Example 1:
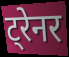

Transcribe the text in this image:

ट्रेनर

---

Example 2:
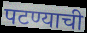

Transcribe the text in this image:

पटण्याची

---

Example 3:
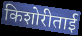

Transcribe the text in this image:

किशोरीताई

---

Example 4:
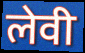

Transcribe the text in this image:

लेवी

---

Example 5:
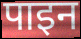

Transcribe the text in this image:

पाइन